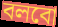
বলবো